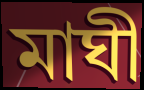
মাঘী